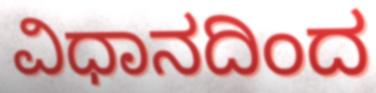
ವಿಧಾನದಿಂದ